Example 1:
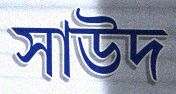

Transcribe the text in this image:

সাউদ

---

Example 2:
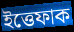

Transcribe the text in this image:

ইত্তেফাক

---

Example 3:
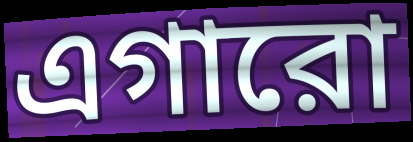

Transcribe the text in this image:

এগারো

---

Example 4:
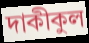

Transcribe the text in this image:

দাকীকুল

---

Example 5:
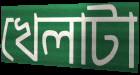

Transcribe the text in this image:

খেলাটা